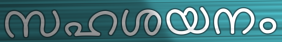
സഹശയനം